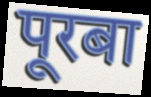
पूरबा